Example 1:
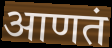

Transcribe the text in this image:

आणतं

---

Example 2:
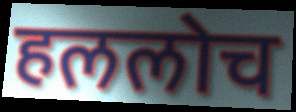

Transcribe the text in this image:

हललोच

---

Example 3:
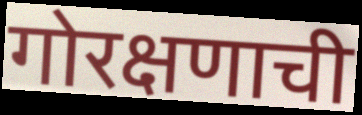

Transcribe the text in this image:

गोरक्षणाची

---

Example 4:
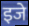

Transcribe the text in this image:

इजे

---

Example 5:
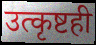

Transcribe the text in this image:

उत्कृष्टही